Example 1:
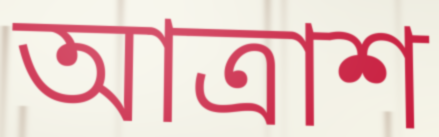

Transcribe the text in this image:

আত্রাশ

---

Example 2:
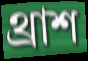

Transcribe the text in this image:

থ্রাশ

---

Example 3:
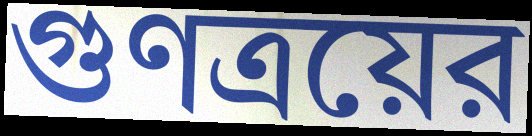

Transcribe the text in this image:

গুণত্রয়ের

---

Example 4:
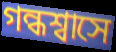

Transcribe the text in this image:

গন্ধশ্বাসে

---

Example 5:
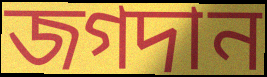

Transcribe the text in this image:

জগদান